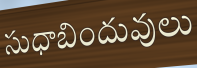
సుధాబిందువులు